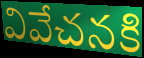
వివేచనకి